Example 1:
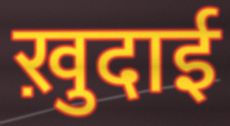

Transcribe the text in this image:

ख़ुदाई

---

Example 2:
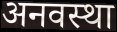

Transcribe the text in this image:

अनवस्था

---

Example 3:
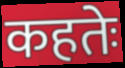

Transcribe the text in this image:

कहतेः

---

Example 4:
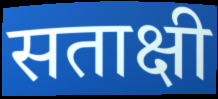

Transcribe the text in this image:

सताक्षी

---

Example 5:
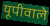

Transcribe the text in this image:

यूपीवाले